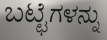
ಬಟ್ಟೆಗಳನ್ನು